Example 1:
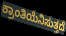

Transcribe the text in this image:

ಕ್ರಾಂತಿಯೆನಿಸುತ್ತದೆ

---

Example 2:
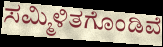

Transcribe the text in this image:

ಸಮ್ಮಿಳಿತಗೊಂಡಿವೆ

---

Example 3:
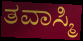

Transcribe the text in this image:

ತವಾಸ್ಮಿ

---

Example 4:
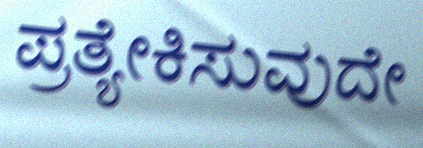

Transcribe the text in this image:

ಪ್ರತ್ಯೇಕಿಸುವುದೇ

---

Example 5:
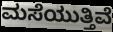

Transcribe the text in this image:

ಮಸೆಯುತ್ತಿವೆ